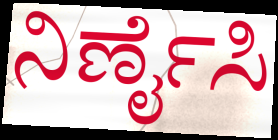
ನಿರ್ಣೈಸಿ